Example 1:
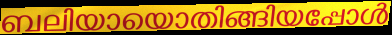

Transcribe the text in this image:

ബലിയായൊതിങ്ങിയപ്പോൾ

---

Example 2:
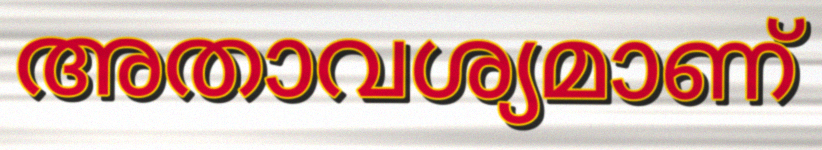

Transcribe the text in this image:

അതാവശ്യമാണ്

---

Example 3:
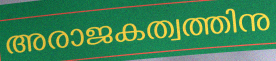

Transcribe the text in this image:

അരാജകത്വത്തിനു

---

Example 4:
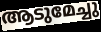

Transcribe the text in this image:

ആടുമേച്ചു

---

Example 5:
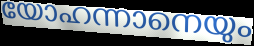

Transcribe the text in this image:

യോഹന്നാനെയും